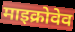
माइक्रोवेव